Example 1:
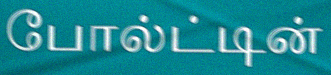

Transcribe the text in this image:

போல்ட்டின்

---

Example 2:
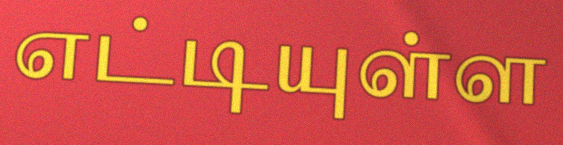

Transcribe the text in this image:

எட்டியுள்ள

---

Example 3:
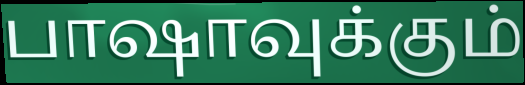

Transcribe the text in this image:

பாஷாவுக்கும்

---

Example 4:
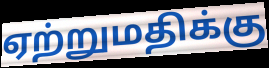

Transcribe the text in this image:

ஏற்றுமதிக்கு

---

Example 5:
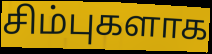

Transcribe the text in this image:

சிம்புகளாக